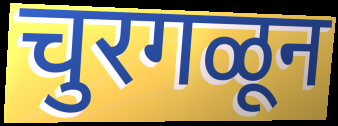
चुरगळून